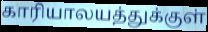
காரியாலயத்துக்குள்